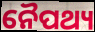
ନୈପଥ୍ୟ